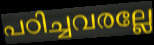
പഠിച്ചവരല്ലേ